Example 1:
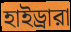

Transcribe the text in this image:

হাইড্রারা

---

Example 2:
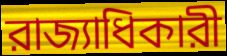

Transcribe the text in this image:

রাজ্যাধিকারী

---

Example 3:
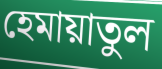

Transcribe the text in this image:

হেমায়াতুল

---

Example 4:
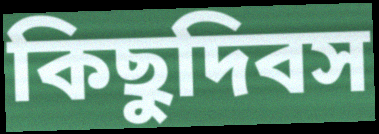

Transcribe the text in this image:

কিছুদিবস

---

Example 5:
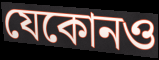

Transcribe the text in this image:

যেকোনও